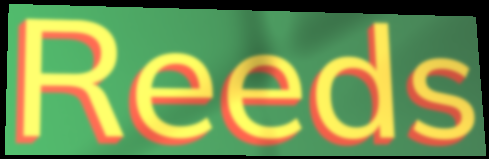
Reeds